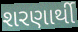
શરણાર્થી